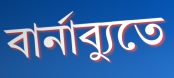
বার্নাব্যুতে